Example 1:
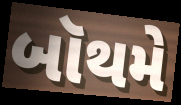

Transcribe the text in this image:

બૉથમે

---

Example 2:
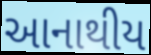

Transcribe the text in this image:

આનાથીય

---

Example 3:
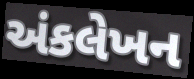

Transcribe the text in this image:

અંકલેખન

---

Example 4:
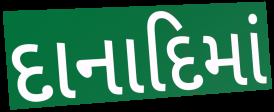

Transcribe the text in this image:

દાનાદિમાં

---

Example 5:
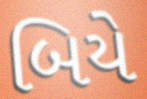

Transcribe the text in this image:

બિયે